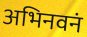
अभिनवनं